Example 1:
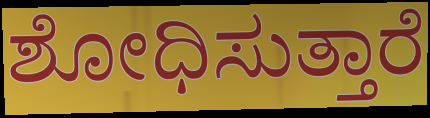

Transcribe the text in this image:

ಶೋಧಿಸುತ್ತಾರೆ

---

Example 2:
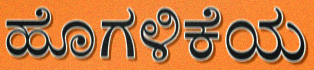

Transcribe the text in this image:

ಹೊಗಳಿಕೆಯ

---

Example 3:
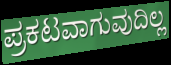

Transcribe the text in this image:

ಪ್ರಕಟವಾಗುವುದಿಲ್ಲ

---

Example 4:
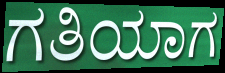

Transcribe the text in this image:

ಗತಿಯಾಗ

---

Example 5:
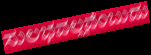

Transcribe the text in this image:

ಸುಲಭವಲ್ಲವೆಂಬುದು